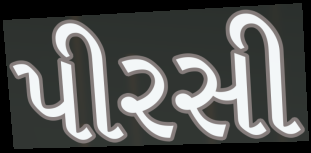
પીરસી